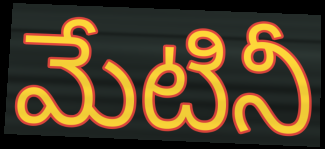
మేటినీ